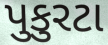
પુકુરટા